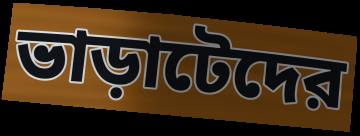
ভাড়াটেদের